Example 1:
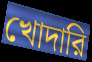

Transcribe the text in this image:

খোদারি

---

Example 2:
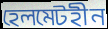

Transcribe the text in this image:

হেলমেটহীন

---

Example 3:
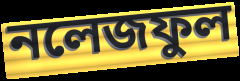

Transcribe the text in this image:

নলেজফুল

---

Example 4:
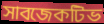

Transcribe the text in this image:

সাবজেকটিভ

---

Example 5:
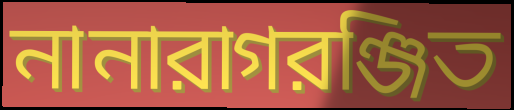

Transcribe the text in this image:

নানারাগরঞ্জিত